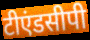
टीएंडसीपी